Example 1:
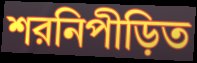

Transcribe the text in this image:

শরনিপীড়িত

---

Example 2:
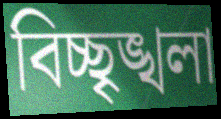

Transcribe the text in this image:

বিচ্ছৃঙ্খলা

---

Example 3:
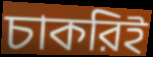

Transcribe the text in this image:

চাকরিই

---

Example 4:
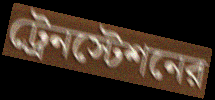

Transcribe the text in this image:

ট্রেনস্টেশনের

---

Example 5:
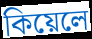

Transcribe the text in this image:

কিয়েলে